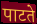
पाटते